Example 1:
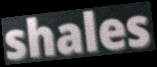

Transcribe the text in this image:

shales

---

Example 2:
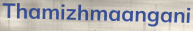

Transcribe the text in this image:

Thamizhmaangani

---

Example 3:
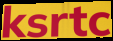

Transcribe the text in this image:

ksrtc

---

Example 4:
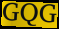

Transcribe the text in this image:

GQG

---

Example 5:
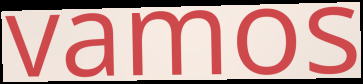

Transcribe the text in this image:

vamos